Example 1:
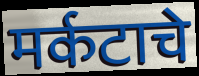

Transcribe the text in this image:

मर्कटाचे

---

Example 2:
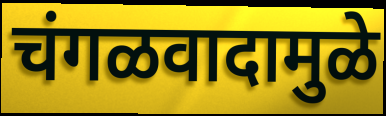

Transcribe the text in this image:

चंगळवादामुळे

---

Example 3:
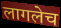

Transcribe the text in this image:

लागलेच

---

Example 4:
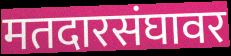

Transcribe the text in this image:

मतदारसंघावर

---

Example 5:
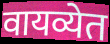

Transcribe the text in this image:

वायव्येत